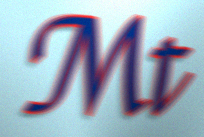
Mt